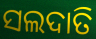
ସଲଦାତି